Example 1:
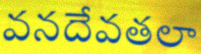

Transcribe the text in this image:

వనదేవతలా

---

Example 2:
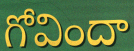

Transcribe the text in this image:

గోవిందా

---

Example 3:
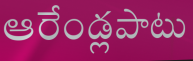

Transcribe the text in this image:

ఆరేండ్లపాటు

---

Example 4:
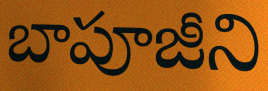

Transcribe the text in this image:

బాపూజీని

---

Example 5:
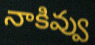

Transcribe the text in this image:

నాకివ్వు